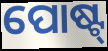
ପୋଷ୍ଟ୍